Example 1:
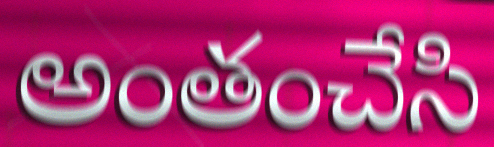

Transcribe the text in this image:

అంతంచేసి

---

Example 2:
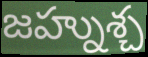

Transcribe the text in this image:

జహ్నుశ్చ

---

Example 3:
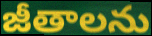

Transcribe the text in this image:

జీతాలను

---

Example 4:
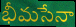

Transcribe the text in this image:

భీమసేనా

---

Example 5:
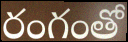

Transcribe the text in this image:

రంగంతో